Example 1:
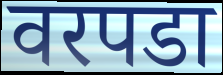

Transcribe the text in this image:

वरपडा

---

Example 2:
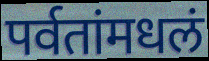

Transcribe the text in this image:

पर्वतांमधलं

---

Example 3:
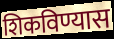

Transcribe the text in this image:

शिकविण्यास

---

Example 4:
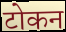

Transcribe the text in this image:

टोकन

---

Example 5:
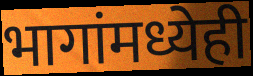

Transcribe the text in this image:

भागांमध्येही